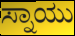
ಸ್ನಾಯು